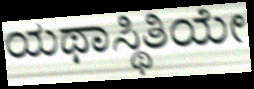
ಯಥಾಸ್ಥಿತಿಯೇ